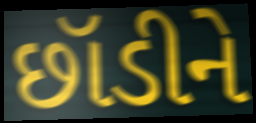
છૉડીને